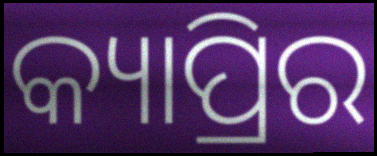
କ୍ୟାପ୍ରିର